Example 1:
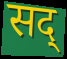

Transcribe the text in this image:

सद्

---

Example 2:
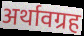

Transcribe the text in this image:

अर्थावग्रह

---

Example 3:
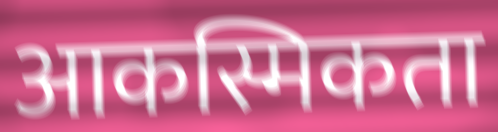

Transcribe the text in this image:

आकस्मिकता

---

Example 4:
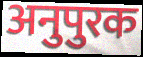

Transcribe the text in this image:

अनुपुरक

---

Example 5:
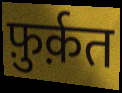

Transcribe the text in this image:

फ़ुर्क़त